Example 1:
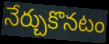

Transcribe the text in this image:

నేర్చుకొనటం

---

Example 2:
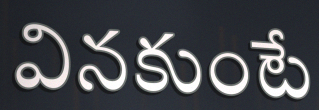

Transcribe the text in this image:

వినకుంటే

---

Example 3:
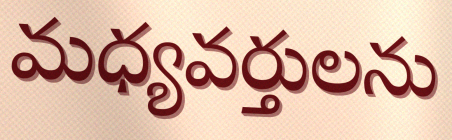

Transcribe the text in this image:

మధ్యవర్తులను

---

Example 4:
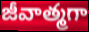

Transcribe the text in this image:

జీవాత్మగా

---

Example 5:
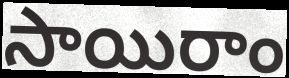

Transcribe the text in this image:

సాయిరాం